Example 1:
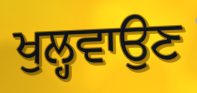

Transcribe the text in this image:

ਖੁਲ੍ਹਵਾਉਣ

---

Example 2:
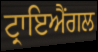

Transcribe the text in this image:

ਟ੍ਰਾਇਐਂਗਲ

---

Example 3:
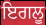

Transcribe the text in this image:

ਇਗਲੂ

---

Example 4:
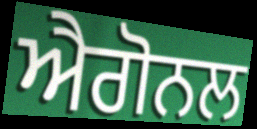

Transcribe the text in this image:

ਐਗੋਨਲ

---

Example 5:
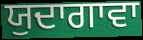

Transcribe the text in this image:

ਯੁਦਾਗਾਵਾ